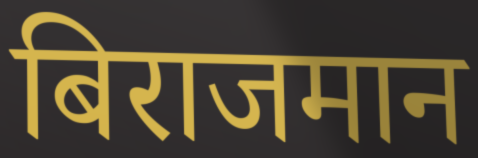
बिराजमान